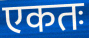
एकतः